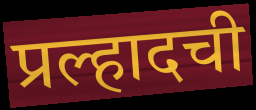
प्रल्हादची